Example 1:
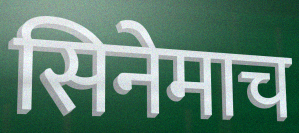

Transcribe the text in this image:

सिनेमाच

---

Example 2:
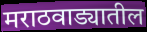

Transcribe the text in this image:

मराठवाड्यातील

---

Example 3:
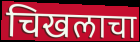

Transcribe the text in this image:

चिखलाचा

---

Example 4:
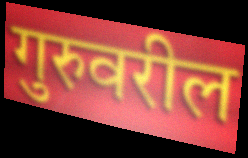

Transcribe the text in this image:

गुरुवरील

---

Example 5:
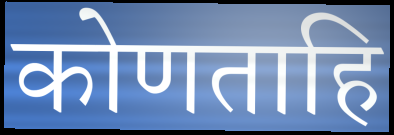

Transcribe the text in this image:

कोणताहि